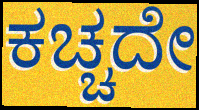
ಕಚ್ಚದೇ